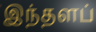
இந்தளப்